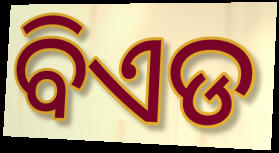
ବିଏଡ